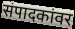
संपादकांवर